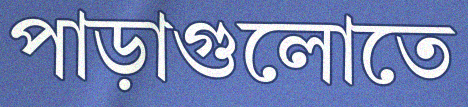
পাড়াগুলোতে